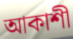
আকাশী